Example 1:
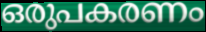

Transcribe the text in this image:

ഒരുപകരണം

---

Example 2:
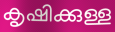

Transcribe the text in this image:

കൃഷിക്കുള്ള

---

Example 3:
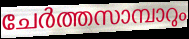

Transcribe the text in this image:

ചേർത്തസാമ്പാറും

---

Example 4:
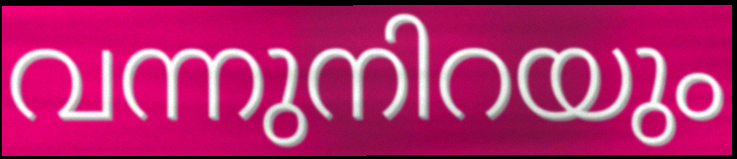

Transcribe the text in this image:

വന്നുനിറയും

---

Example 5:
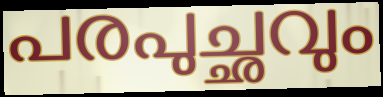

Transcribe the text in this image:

പരപുച്ഛവും